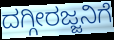
ದಗ್ಗೀರಜ್ಜನಿಗೆ